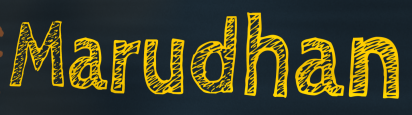
Marudhan